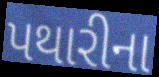
પથારીના